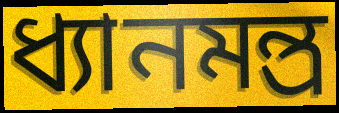
ধ্যানমন্ত্ৰ